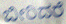
ಬೀರಿದರೆ